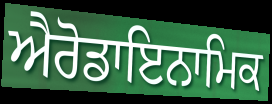
ਐਰੋਡਾਇਨਾਮਿਕ